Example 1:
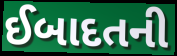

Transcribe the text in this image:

ઈબાદતની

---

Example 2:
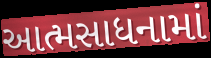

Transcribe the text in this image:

આત્મસાધનામાં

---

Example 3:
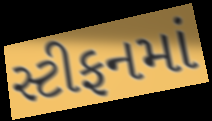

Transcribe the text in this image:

સ્ટીફનમાં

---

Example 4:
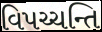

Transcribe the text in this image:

વિપચ્ચન્તિ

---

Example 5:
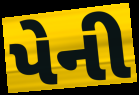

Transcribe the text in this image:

પેની